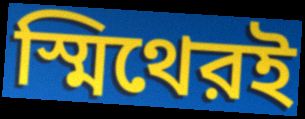
স্মিথেরই